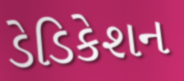
ડેડિકેશન